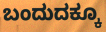
ಬಂದುದಕ್ಕೂ